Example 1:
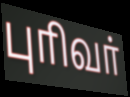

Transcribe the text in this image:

புரிவர்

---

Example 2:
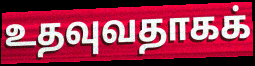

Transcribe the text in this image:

உதவுவதாகக்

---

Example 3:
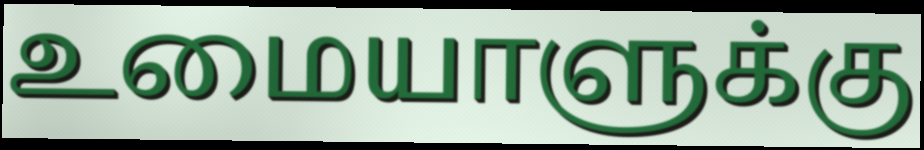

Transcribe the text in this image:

உமையாளுக்கு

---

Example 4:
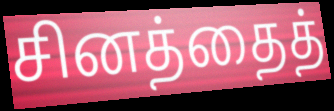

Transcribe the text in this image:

சினத்தைத்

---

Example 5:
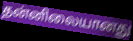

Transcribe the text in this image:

தன்னிலையானது